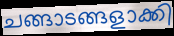
ചങ്ങാടങ്ങളാക്കി